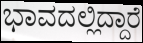
ಭಾವದಲ್ಲಿದ್ದಾರೆ